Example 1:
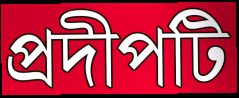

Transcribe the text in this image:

প্রদীপটি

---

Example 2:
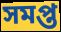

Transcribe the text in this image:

সমপ্ত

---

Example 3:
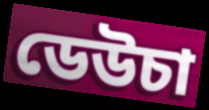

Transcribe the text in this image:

ডেউচা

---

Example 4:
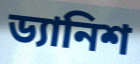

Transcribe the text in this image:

ড্যানিশ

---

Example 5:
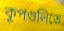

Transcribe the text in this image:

কূপগুলিতে